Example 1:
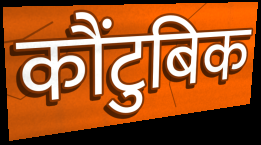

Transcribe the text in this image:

कौंटुबिक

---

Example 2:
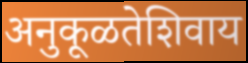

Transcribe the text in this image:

अनुकूळतेशिवाय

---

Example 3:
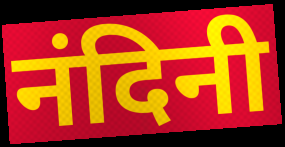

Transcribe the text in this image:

नंदिनी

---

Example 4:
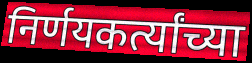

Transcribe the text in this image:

निर्णयकर्त्यांच्या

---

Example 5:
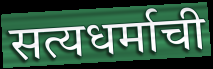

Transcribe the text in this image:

सत्यधर्माची